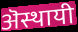
ऄस्थायी